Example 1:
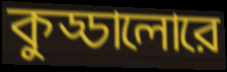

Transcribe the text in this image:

কুড্ডালোরে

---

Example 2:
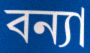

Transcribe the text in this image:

বন্যা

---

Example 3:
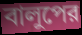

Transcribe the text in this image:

বালুপের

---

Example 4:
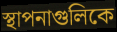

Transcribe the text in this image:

স্থাপনাগুলিকে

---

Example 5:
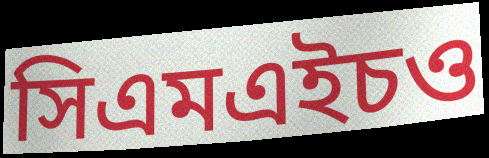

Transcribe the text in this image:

সিএমএইচও